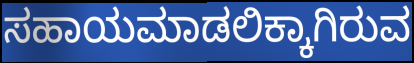
ಸಹಾಯಮಾಡಲಿಕ್ಕಾಗಿರುವ